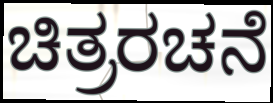
ಚಿತ್ರರಚನೆ